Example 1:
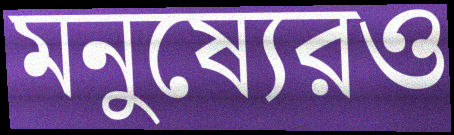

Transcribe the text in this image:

মনুষ্যেরও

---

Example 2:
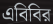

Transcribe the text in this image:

এবিবির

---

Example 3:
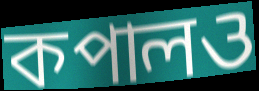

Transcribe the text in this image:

কপালও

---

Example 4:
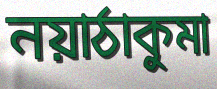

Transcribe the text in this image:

নয়াঠাকুমা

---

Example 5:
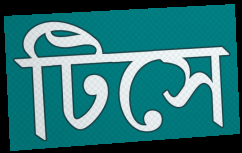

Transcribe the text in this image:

টিসে